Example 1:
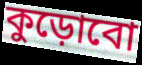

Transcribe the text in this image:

কুড়োবো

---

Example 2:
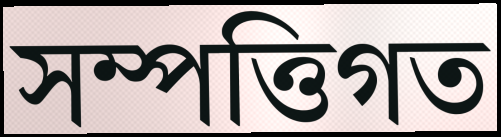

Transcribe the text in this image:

সম্পত্তিগত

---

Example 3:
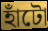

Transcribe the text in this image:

হাঁটো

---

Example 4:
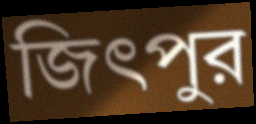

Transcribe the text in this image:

জিৎপুর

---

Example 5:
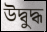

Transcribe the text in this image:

উদ্বুদ্ধ